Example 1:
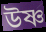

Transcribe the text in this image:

উষ্ণ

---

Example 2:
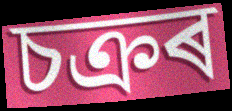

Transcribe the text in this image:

চক্ৰৰ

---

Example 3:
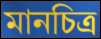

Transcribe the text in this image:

মানচিত্ৰ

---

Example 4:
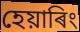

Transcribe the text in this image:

হেয়াৰিং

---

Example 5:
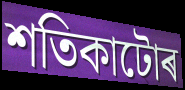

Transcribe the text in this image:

শতিকাটোৰ